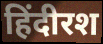
हिंदीरश